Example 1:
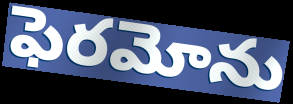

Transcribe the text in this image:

ఫెరమోను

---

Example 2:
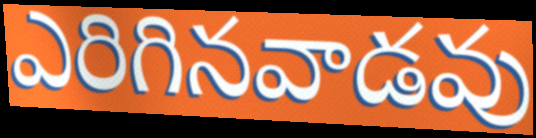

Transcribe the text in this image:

ఎరిగినవాడవు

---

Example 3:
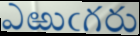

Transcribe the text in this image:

ఎఱుఁగరు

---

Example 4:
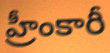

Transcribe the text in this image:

హ్రీంకారీ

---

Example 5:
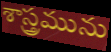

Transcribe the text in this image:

శాస్త్రమును